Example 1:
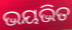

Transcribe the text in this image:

ଭୟଭିତ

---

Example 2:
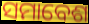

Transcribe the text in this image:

ସମାବେଶ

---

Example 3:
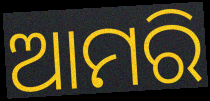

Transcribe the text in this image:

ଆମରି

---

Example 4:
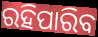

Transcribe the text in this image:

ରହିପାରିବ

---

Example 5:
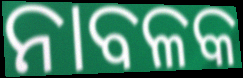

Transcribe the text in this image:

ନାବଳକ